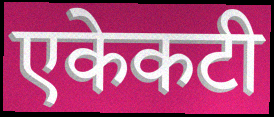
एकेकटी